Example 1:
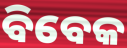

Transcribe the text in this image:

ବିବେକ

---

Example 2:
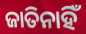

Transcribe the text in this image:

ଜାତିନାହିଁ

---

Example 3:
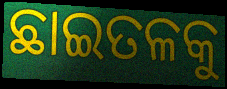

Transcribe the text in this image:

ଛାଇତଳକୁ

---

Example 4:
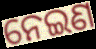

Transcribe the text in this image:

ନେଇଣ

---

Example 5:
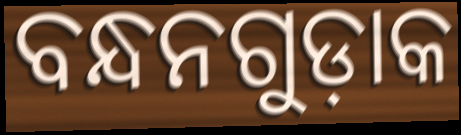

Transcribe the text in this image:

ବନ୍ଧନଗୁଡ଼ାକ